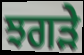
ਝਗਡ਼ੇ